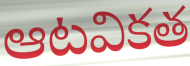
ఆటవికత